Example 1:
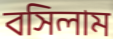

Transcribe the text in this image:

বসিলাম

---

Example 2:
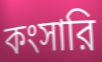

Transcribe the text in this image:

কংসারি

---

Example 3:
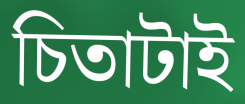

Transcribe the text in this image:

চিতাটাই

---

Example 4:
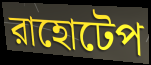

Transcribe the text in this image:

রাহোটেপ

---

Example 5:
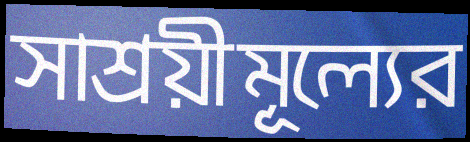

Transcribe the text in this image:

সাশ্রয়ীমূল্যের